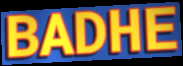
BADHE